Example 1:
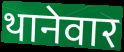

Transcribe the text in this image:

थानेवार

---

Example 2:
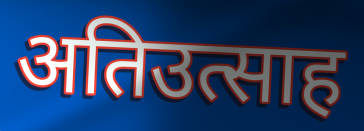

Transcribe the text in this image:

अतिउत्साह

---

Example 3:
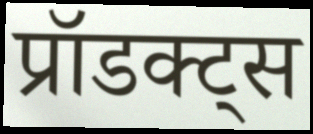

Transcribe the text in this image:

प्रॉडक्ट्स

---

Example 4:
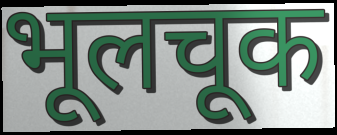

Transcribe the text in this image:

भूलचूक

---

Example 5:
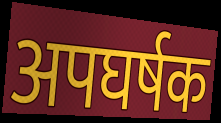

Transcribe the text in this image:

अपघर्षक